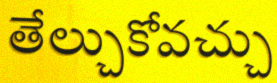
తేల్చుకోవచ్చు